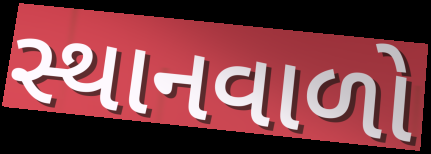
સ્થાનવાળો